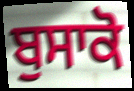
ਬੁਸਾਕੋ